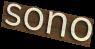
sono